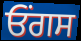
ਓਂਗਸ